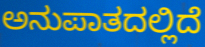
ಅನುಪಾತದಲ್ಲಿದೆ